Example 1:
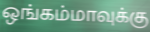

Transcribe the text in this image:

ஒங்கம்மாவுக்கு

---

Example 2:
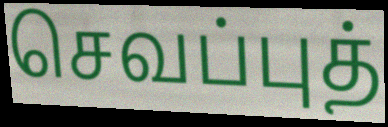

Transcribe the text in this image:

செவப்புத்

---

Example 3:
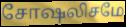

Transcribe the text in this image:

சோஷலிசமே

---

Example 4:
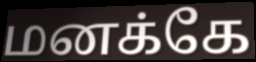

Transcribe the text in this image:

மனக்கே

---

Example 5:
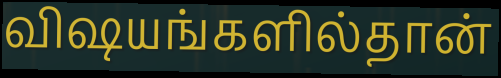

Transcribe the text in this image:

விஷயங்களில்தான்